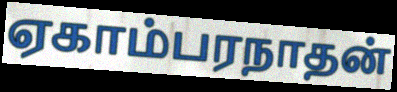
ஏகாம்பரநாதன்